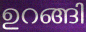
ഉറങ്ങി